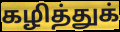
கழித்துக்